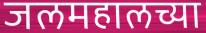
जलमहालच्या